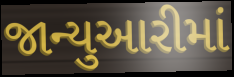
જાન્યુઆરીમાં